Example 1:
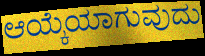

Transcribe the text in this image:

ಆಯ್ಕೆಯಾಗುವುದು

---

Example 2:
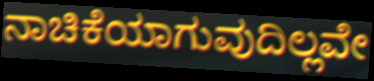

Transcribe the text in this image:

ನಾಚಿಕೆಯಾಗುವುದಿಲ್ಲವೇ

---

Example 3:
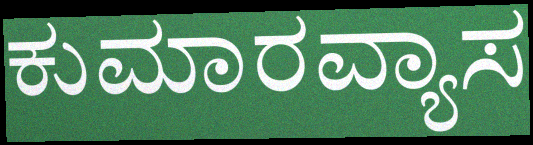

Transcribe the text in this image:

ಕುಮಾರವ್ಯಾಸ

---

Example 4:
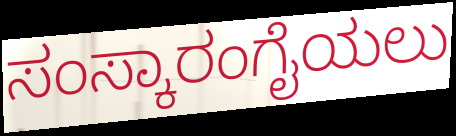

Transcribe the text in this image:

ಸಂಸ್ಕಾರಂಗೈಯಲು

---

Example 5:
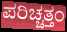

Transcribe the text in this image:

ಪರಿಚ್ಚತ್ತಂ